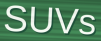
SUVs